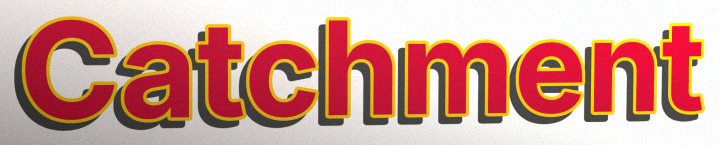
Catchment